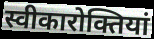
स्वीकारोक्तियां